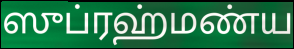
ஸுப்ரஹ்மண்ய